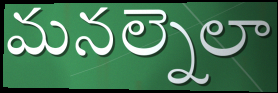
మనల్నెలా